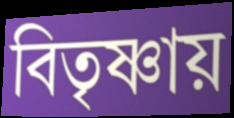
বিতৃষ্ণায়